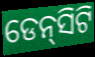
ଡେନ୍‌ସିଟି